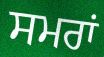
ਸਮਰਾਂ